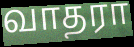
வாதரா